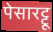
पेसारट्टू